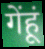
गेंहूं